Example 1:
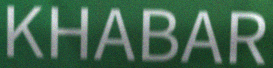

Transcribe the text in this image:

KHABAR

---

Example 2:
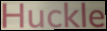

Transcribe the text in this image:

Huckle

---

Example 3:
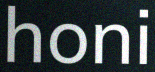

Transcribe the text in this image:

honi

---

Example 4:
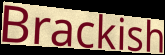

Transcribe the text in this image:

Brackish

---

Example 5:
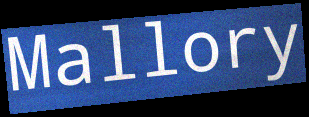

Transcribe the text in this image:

Mallory